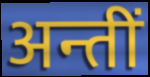
अन्तीं